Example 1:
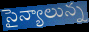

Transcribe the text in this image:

సైన్యాలున్న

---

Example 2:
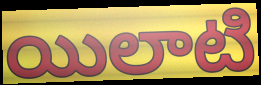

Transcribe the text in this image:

యిలాటి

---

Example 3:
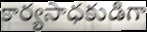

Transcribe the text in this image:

కార్యసాధకుడిగా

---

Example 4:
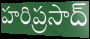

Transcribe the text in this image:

హరిప్రసాద్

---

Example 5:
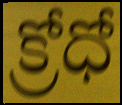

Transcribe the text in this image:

క్రోధో